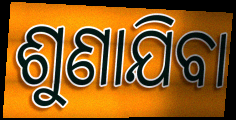
ଶୁଣାଯିବା